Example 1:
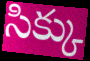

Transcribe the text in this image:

సిక్కు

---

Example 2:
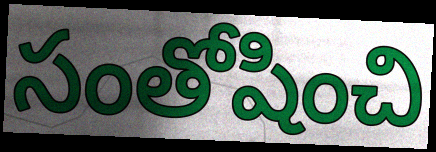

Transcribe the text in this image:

సంతోషించి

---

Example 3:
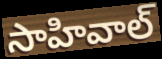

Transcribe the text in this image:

సాహివాల్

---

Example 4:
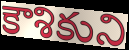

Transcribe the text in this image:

కౌశికుని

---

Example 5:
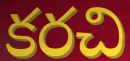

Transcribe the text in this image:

కరచి